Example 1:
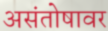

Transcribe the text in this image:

असंतोषावर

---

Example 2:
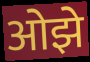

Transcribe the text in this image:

ओझे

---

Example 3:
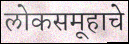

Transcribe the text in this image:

लोकसमूहाचे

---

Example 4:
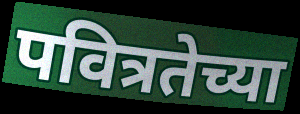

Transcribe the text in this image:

पवित्रतेच्या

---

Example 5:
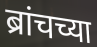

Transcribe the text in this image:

ब्रांचच्या